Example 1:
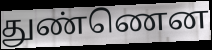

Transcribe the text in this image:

துண்ணென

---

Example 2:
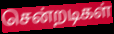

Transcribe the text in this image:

சென்றடிகள்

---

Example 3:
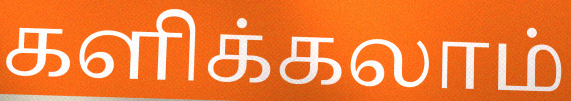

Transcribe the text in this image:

களிக்கலாம்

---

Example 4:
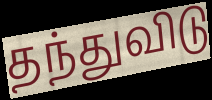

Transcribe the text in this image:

தந்துவிடு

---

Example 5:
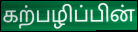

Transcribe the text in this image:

கற்பழிப்பின்